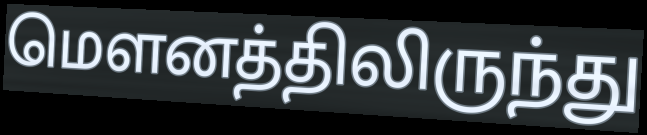
மௌனத்திலிருந்து